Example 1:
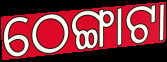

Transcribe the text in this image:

ଠେଙ୍ଗାଟା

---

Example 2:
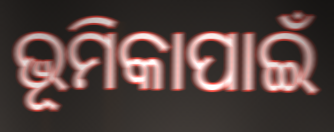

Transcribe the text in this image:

ଭୂମିକାପାଇଁ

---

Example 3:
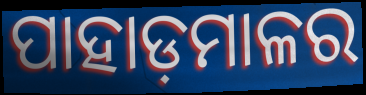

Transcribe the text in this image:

ପାହାଡ଼ମାଳର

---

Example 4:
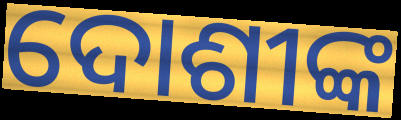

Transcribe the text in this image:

ଦୋଶୀଙ୍କ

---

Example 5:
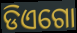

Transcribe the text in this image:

ଡିଏଗୋ